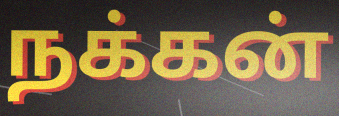
நக்கன்